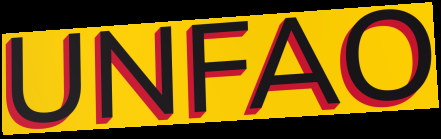
UNFAO